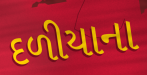
દળીયાના